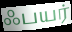
ஃபயர்